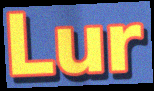
Lur